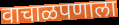
वाचाळपणाला